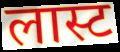
लास्ट